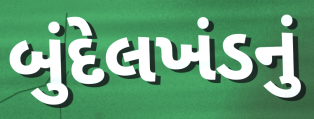
બુંદેલખંડનું